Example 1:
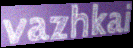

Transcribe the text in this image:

vazhkai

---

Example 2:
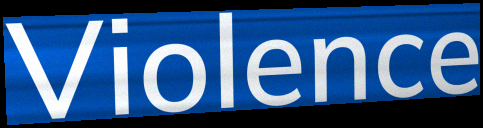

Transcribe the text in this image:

Violence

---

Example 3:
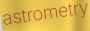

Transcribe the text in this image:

astrometry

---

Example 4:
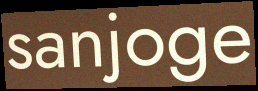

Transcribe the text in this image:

sanjoge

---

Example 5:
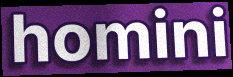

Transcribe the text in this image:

homini